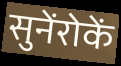
सुनेंरोकें